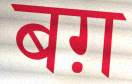
बग़